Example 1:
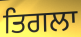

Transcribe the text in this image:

ਤਿਗਲਾ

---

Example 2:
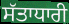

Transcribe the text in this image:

ਸੱਤਾਧਾਰੀ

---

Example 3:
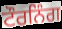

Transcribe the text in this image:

ਟੌਰਨਿੰਗ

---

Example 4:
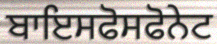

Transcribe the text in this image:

ਬਾਇਸਫੋਸਫੋਨੇਟ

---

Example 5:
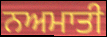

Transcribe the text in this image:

ਨਅਮਾਤੀ